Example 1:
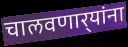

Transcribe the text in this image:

चालवणार्‍यांना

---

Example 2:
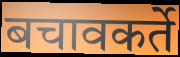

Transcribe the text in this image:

बचावकर्ते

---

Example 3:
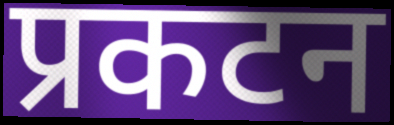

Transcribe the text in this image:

प्रकटन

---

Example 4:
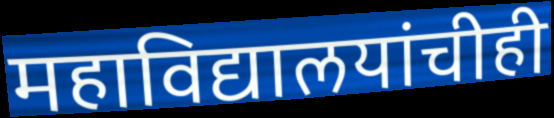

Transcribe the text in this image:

महाविद्यालयांचीही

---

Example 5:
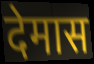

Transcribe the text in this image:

देमास